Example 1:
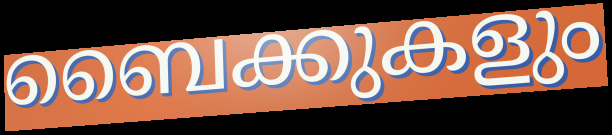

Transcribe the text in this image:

ബൈക്കുകളും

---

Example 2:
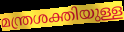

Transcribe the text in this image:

മന്ത്രശക്തിയുള്ള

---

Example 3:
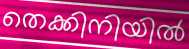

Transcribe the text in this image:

തെക്കിനിയിൽ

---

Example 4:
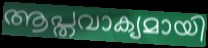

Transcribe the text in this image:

ആപ്തവാക്യമായി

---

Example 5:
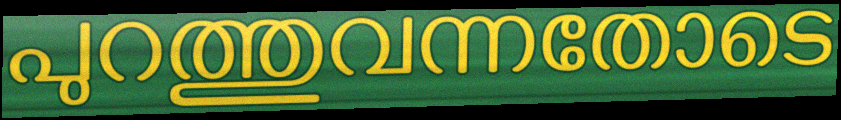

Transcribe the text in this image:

പുറത്തുവന്നതോടെ